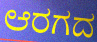
ಆರಗದ